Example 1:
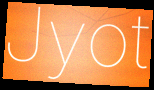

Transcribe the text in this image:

Jyot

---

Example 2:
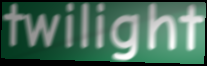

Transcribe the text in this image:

twilight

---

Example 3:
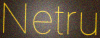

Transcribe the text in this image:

Netru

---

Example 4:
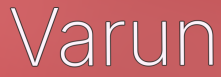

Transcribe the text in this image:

Varun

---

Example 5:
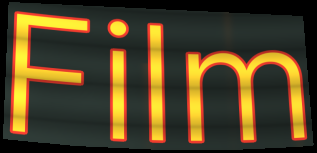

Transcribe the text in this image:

Film